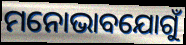
ମନୋଭାବଯୋଗୁଁ